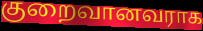
குறைவானவராக